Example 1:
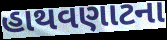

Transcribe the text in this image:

હાથવણાટના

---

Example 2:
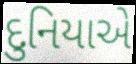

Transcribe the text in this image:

દુનિયાએ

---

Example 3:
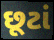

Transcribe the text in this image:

છૂટાં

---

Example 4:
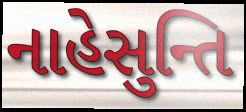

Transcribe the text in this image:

નાહેસુન્તિ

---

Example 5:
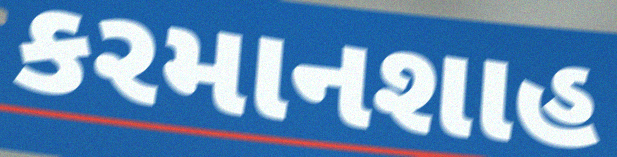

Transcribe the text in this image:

કરમાનશાહ